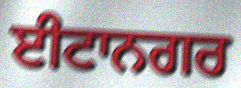
ਈਟਾਨਗਰ